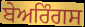
ਬੇਅਰਿੰਗਸ